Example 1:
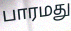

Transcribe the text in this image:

பாரமது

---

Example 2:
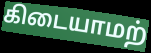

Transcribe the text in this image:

கிடையாமற்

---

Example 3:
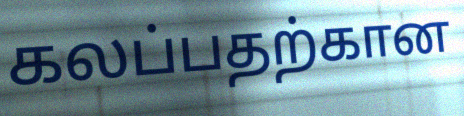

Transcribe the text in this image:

கலப்பதற்கான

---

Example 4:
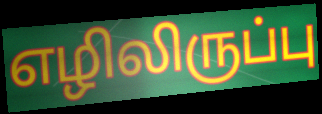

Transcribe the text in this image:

எழிலிருப்பு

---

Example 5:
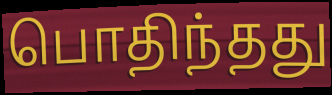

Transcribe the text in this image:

பொதிந்தது